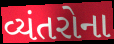
વ્યંતરોના